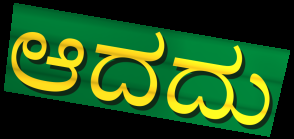
ಆದದು